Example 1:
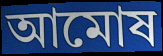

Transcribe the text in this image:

আমোষ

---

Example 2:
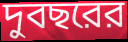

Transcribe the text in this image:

দুবছরের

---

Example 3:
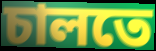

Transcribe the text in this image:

চালতে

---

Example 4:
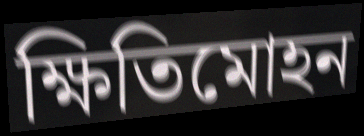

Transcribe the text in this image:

ক্ষিতিমোহন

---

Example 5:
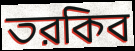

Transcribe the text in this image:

তরকিব